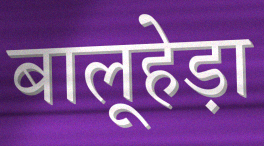
बालूहेड़ा